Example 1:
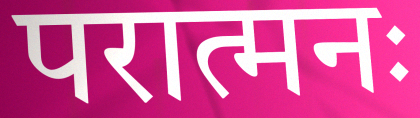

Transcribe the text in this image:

परात्मनः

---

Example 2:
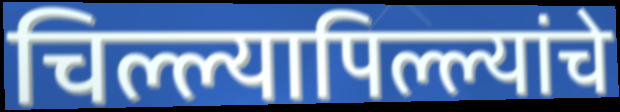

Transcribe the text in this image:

चिल्ल्यापिल्ल्यांचे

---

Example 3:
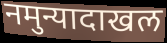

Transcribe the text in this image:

नमुन्यादाखल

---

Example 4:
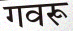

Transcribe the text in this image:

गवरू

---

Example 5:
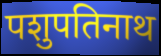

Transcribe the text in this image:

पशुपतिनाथ